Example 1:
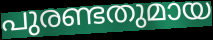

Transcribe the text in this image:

പുരണ്ടതുമായ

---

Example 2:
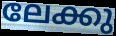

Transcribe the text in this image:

ലേക്കു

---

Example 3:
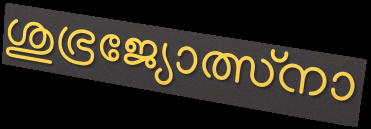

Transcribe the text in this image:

ശുഭ്രജ്യോത്സ്നാ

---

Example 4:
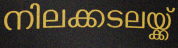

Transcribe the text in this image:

നിലക്കടലയ്ക്ക്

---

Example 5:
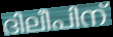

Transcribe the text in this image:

ദിലീപിന്